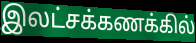
இலட்சக்கணக்கில்